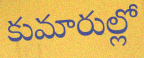
కుమారుల్లో